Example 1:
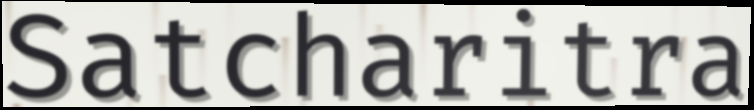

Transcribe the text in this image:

Satcharitra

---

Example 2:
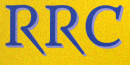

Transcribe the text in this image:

RRC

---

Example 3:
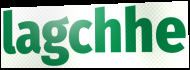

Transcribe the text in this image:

lagchhe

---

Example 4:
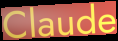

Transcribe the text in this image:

Claude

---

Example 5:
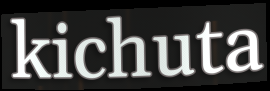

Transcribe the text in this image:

kichuta